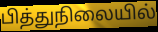
பித்துநிலையில்